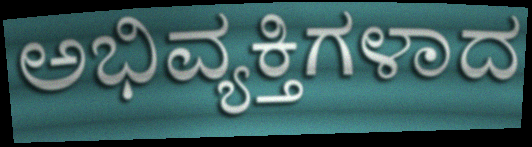
ಅಭಿವ್ಯಕ್ತಿಗಳಾದ